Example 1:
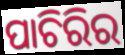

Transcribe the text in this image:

ପାଚିରିର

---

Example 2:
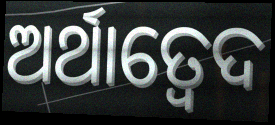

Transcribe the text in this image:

ଅର୍ଥାତ୍ବେଦ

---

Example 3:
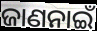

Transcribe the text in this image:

ଜାଣନାଇଁ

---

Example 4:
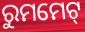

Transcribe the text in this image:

ରୁମମେଟ୍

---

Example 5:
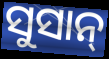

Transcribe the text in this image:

ସୁସାନ୍